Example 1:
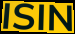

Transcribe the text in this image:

ISIN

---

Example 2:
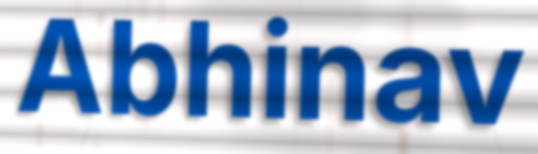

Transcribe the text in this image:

Abhinav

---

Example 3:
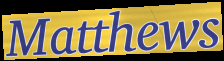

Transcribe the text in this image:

Matthews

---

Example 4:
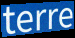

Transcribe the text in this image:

terre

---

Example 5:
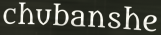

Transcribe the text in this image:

chubanshe